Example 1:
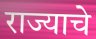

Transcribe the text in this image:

राज्याचे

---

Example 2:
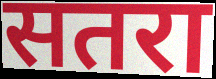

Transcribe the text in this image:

सतरा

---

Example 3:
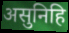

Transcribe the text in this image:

असुनिहि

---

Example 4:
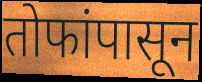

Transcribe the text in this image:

तोफांपासून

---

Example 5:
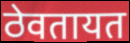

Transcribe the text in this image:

ठेवतायत